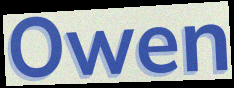
Owen